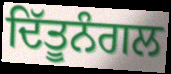
ਦਿੱਤੂਨੰਗਲ